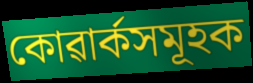
কোৱাৰ্কসমূহক